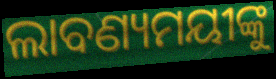
ଲାବଣ୍ୟମୟୀଙ୍କୁ